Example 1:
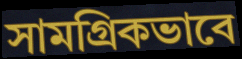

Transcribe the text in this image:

সামগ্রিকভাবে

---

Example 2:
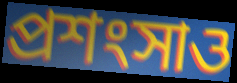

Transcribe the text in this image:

প্রশংসাও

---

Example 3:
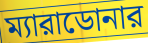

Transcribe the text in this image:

ম্যারাডোনার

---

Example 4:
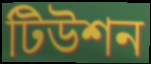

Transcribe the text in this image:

টিউশন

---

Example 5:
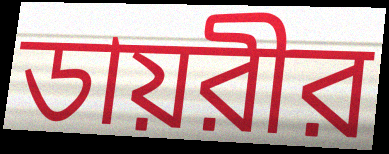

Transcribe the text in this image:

ডায়রীর